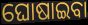
ଘୋଷାଇବା